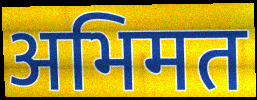
अभिमत